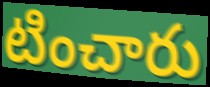
టించారు